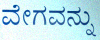
ವೇಗವನ್ನು